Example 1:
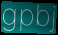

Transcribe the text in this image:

gpbj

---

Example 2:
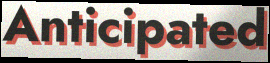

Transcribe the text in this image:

Anticipated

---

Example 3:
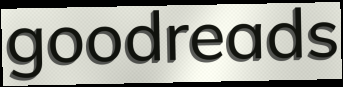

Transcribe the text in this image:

goodreads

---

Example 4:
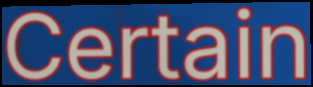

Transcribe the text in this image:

Certain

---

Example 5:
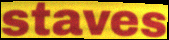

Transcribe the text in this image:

staves